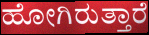
ಹೋಗಿರುತ್ತಾರೆ